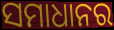
ସମାଧାନର